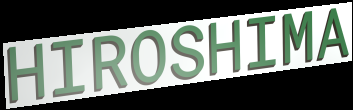
HIROSHIMA